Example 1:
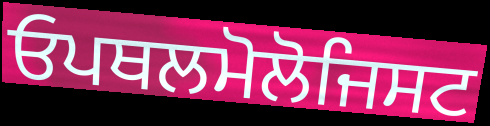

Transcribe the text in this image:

ਓਪਥਲਮੋਲੋਜਿਸਟ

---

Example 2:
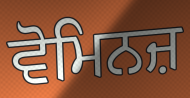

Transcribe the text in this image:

ਵੋਮਿਨਜ਼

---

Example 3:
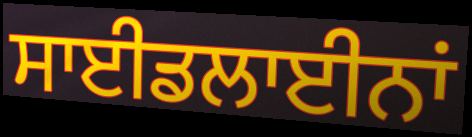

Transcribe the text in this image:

ਸਾਈਡਲਾਈਨਾਂ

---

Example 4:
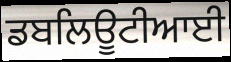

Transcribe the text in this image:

ਡਬਲਿਊਟੀਆਈ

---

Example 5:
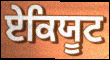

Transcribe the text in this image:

ਏਕਿਯੂਟ